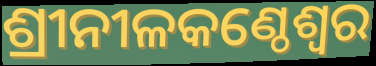
ଶ୍ରୀନୀଳକଣ୍ଠେଶ୍ଵର